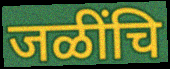
जळींचि